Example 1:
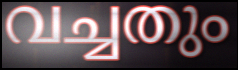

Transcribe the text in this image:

വച്ചതും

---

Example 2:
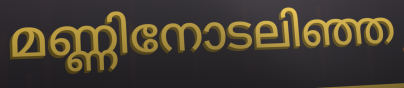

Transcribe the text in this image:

മണ്ണിനോടലിഞ്ഞ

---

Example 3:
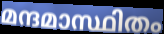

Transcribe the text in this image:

മന്ദമാസ്ഥിതം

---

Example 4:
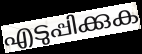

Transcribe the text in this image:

എടുപ്പിക്കുക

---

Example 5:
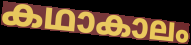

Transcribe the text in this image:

കഥാകാലം